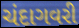
ચંદાગવરી